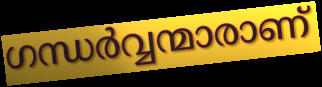
ഗന്ധർവ്വന്മാരാണ്